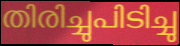
തിരിച്ചുപിടിച്ചു